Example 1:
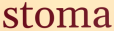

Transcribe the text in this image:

stoma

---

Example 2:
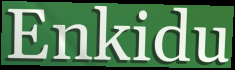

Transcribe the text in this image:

Enkidu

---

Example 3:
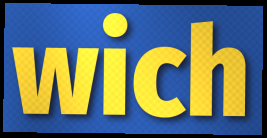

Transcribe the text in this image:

wich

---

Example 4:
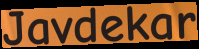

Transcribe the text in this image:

Javdekar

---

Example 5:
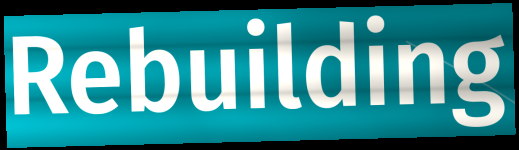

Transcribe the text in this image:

Rebuilding